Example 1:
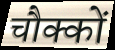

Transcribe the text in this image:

चौक्कों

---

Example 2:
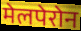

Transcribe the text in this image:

मेलपेरोन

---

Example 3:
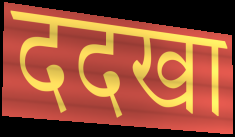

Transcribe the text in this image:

ददखा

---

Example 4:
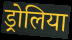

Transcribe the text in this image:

ड्रोलिया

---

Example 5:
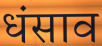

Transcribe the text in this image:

धंसाव